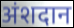
अंशदान